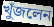
খুঁজলেন